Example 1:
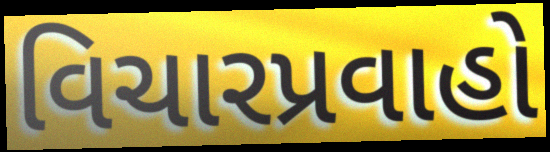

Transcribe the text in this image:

વિચારપ્રવાહો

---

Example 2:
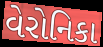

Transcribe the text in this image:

વેરોનિકા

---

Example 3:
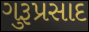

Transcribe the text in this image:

ગુરૂપ્રસાદ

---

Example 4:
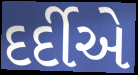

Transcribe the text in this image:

દર્દીએ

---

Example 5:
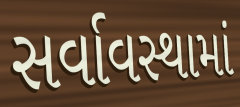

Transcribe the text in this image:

સર્વાવસ્થામાં